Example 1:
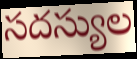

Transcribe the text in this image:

సదస్యుల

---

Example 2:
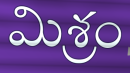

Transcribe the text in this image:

మిశ్రం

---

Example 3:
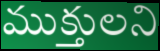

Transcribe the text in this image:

ముక్తులని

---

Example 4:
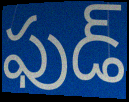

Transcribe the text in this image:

ఫుడ్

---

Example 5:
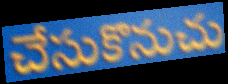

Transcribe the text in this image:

చేసుకొనుచు